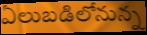
ఏలుబడిలోనున్న